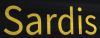
Sardis